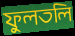
ফুলতলি